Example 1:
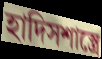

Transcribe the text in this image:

হাদিসশাস্ত্রে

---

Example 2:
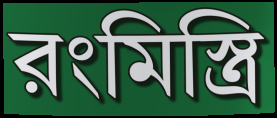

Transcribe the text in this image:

রংমিস্ত্রি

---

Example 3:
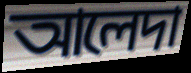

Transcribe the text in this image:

আলেদা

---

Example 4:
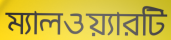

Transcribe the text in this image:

ম্যালওয়্যারটি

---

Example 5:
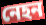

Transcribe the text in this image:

নেহন